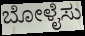
ಬೋಳೈಸು